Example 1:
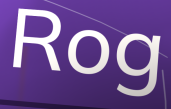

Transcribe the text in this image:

Rog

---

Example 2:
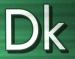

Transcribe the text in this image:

Dk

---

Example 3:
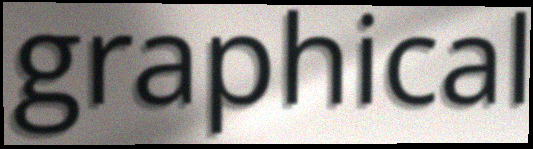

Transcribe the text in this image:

graphical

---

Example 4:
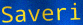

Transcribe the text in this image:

Saveri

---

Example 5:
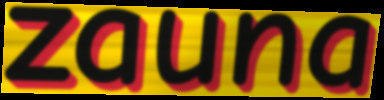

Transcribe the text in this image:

zauna